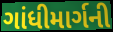
ગાંધીમાર્ગની